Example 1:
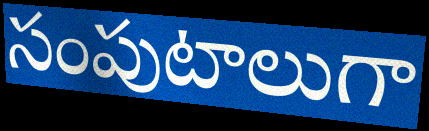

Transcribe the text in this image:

సంపుటాలుగా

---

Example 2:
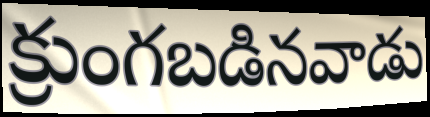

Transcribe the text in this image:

క్రుంగబడినవాడు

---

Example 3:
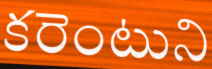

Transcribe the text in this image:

కరెంటుని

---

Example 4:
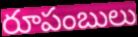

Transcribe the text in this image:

రూపంబులు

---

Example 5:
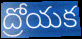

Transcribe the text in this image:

ద్రోయక